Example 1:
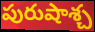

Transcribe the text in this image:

పురుషాశ్చ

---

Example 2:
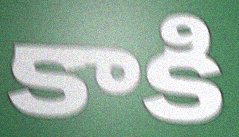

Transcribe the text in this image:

కాకి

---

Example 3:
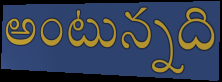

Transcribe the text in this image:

అంటున్నది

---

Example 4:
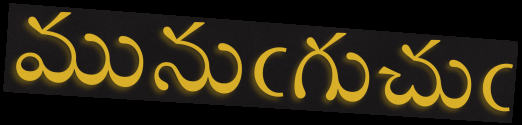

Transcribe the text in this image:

మునుఁగుచుఁ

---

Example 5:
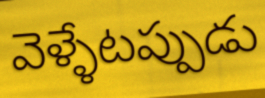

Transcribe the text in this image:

వెళ్ళేటప్పుడు